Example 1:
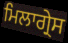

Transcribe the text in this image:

ਮਿਲਾਗ੍ਰੇਸ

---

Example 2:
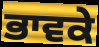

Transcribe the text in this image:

ਭਾਵਕੇ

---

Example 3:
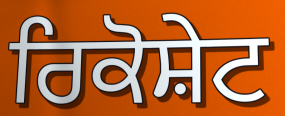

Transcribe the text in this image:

ਰਿਕੋਸ਼ੇਟ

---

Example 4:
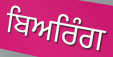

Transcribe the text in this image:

ਬਿਅਰਿੰਗ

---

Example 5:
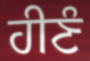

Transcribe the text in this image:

ਹੀਣੰ